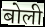
बोली